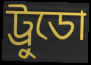
ট্রুডো